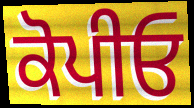
ਕੋਪੀਓ